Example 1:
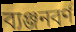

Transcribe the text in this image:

ব্যঞ্জনবর্ণ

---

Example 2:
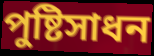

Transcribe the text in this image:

পুষ্টিসাধন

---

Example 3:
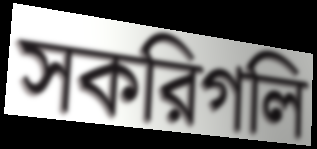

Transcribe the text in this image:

সকরিগলি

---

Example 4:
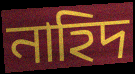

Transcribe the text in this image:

নাহিদ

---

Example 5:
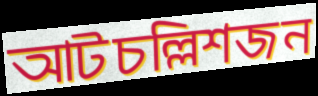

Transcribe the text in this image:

আটচল্লিশজন